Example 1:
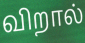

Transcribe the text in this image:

விறால்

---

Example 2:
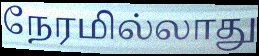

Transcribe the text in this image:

நேரமில்லாது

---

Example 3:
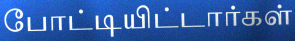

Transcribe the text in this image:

போட்டியிட்டார்கள்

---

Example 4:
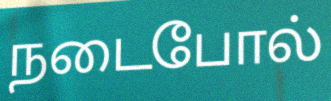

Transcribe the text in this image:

நடைபோல்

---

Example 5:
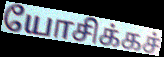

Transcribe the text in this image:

யோசிக்கச்